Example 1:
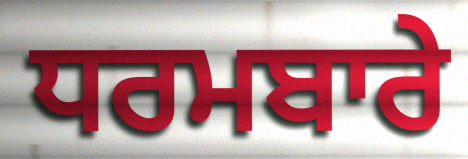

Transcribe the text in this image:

ਧਰਮਬਾਰੇ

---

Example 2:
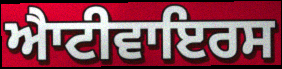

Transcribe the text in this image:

ਐਾਟੀਵਾਇਰਸ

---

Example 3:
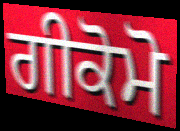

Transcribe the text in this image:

ਗੀਕੋਮੋ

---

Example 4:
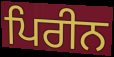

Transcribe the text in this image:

ਪਿਰੀਨ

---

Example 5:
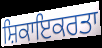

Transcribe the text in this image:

ਸ਼ਿਕਾਇਕਰਤਾ